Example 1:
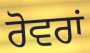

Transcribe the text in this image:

ਰੋਵਰਾਂ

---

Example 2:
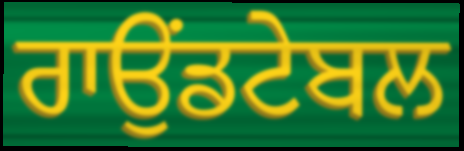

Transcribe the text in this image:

ਰਾਉਂਡਟੇਬਲ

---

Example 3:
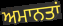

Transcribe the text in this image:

ਅਮਾਨਤਾਂ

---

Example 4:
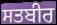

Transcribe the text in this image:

ਸਤਬੀਰ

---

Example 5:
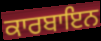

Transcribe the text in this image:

ਕਾਰਬਾਇਨ